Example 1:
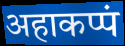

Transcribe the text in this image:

अहाकप्पं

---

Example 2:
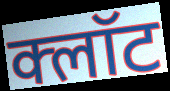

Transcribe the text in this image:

क्‍लॉट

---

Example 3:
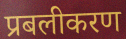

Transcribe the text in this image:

प्रबलीकरण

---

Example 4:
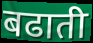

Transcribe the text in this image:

बढाती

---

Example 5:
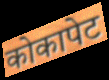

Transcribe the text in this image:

कोकापेट